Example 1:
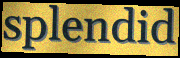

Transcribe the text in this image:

splendid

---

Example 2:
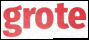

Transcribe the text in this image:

grote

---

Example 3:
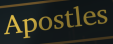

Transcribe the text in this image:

Apostles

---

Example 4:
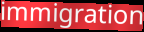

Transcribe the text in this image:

immigration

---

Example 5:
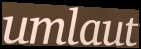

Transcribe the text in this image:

umlaut